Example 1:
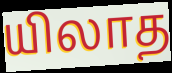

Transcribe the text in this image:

யிலாத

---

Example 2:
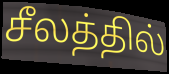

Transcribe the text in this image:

சீலத்தில்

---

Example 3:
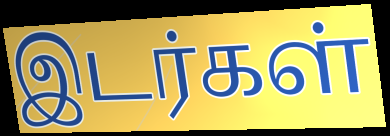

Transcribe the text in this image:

இடர்கள்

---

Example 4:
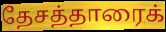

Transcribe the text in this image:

தேசத்தாரைக்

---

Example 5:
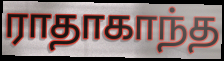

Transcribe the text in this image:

ராதாகாந்த